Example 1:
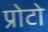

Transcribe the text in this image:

प्रोटो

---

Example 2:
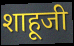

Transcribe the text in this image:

शाहूजी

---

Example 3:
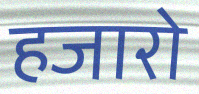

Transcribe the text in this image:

हजारो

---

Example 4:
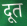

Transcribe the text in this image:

दूत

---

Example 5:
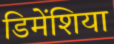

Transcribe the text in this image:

डिमेंशिया